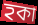
হকা